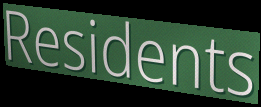
Residents